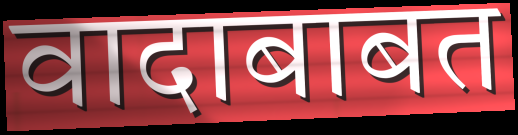
वादाबाबत